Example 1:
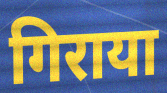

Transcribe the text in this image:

गिराया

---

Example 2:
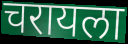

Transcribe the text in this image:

चरायला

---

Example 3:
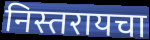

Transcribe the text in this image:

निस्तरायचा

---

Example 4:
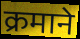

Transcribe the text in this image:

क्रमाने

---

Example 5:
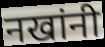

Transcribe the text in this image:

नखांनी